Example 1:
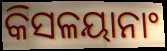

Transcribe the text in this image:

କିସଳୟାନାଂ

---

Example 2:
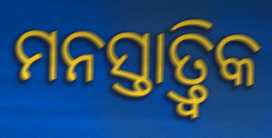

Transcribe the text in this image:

ମନସ୍ତାତ୍ତ୍ବିକ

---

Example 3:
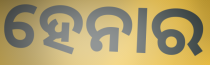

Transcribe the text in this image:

ହେନାର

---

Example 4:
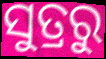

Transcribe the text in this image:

ସୁତ୍ରରୁ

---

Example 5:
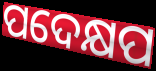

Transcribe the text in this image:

ପଦେକ୍ଷପ